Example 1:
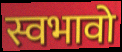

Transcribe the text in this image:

स्वभावो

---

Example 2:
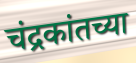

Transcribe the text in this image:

चंद्रकांतच्या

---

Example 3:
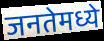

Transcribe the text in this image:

जनतेमध्ये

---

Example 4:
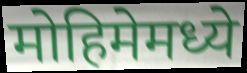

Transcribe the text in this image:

मोहिमेमध्ये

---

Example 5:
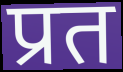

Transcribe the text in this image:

प्रत